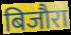
बिजौरा